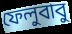
ফেলুবাবু